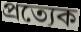
প্ৰত্যেক